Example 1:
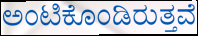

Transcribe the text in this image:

ಅಂಟಿಕೊಂಡಿರುತ್ತವೆ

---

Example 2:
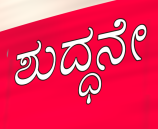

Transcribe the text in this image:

ಶುದ್ಧನೇ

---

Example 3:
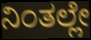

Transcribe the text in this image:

ನಿಂತಲ್ಲೇ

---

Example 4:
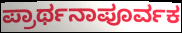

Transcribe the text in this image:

ಪ್ರಾರ್ಥನಾಪೂರ್ವಕ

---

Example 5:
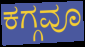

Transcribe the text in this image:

ಕಗ್ಗವೂ